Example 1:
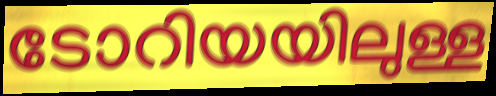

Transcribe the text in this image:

ടോറിയയിലുള്ള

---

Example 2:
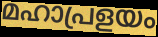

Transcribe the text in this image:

മഹാപ്രളയം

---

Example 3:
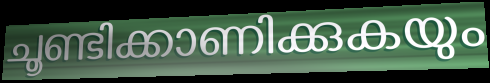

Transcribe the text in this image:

ചൂണ്ടിക്കാണിക്കുകയും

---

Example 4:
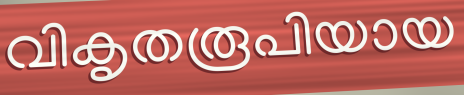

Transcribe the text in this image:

വികൃതരൂപിയായ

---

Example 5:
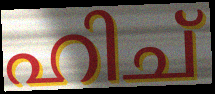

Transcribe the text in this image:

ഹിച്